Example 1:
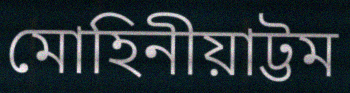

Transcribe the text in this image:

মোহিনীয়াট্টম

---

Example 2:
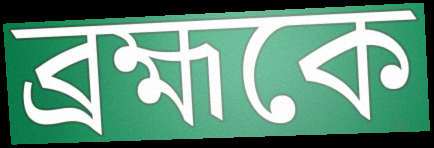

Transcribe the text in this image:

ব্রহ্মকে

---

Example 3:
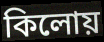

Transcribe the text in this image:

কিলোয়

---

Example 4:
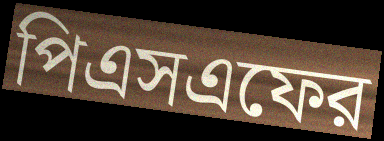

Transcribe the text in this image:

পিএসএফের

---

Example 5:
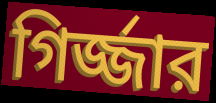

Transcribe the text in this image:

গির্জ্জার